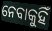
ନେବାକୁହିଁ